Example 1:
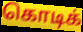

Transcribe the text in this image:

கொடிக்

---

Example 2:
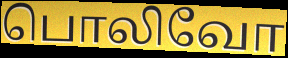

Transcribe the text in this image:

பொலிவோ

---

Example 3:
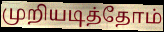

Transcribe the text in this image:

முறியடித்தோம்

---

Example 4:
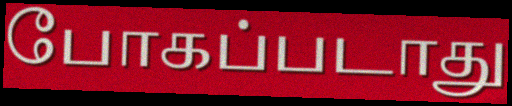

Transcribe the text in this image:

போகப்படாது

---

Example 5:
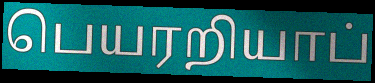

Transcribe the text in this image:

பெயரறியாப்